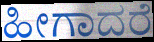
ಹೀಗಾದರೆ